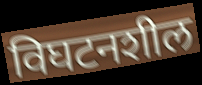
विघटनशील